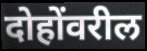
दोहोंवरील